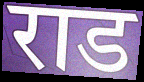
राड